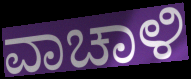
ವಾಚಾಳಿ